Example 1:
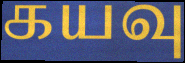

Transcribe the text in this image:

கயவு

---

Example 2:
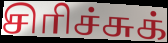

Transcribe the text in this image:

சிரிச்சுக்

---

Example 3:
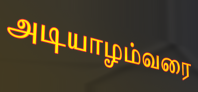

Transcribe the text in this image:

அடியாழம்வரை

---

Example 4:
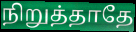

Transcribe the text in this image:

நிறுத்தாதே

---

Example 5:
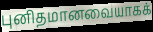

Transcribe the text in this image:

புனிதமானவையாகக்